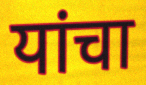
यांचा